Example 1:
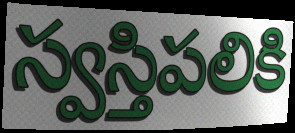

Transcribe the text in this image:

స్వస్తిపలికి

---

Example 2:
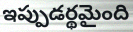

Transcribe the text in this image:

ఇప్పుడర్థమైంది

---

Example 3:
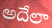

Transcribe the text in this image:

అదేలా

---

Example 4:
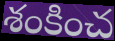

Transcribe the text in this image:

శంకించ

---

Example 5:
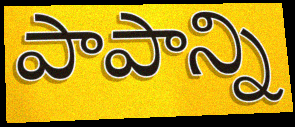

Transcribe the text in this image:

పాపాన్ని